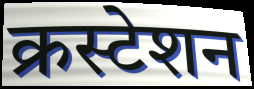
क्रस्टेशन